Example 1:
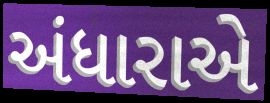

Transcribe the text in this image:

અંધારાએ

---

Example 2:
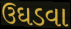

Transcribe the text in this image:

ઉઘડવા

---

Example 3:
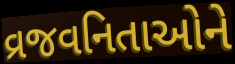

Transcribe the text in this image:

વ્રજવનિતાઓને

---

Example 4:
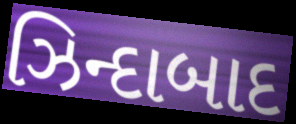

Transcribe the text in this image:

ઝિન્દાબાદ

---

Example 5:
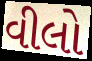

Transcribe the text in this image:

વીલો